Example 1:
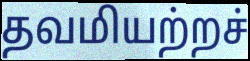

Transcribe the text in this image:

தவமியற்றச்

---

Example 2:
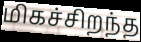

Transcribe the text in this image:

மிகச்சிறந்த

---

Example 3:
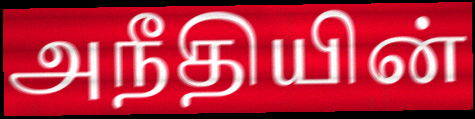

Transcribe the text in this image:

அநீதியின்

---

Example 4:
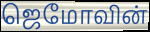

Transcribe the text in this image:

ஜெமோவின்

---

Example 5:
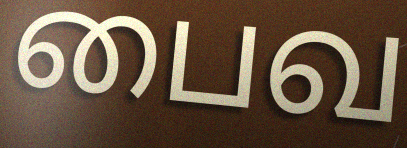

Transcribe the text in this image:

பைவ